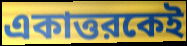
একাত্তরকেই